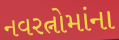
નવરત્નોમાંના